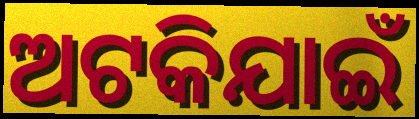
ଅଟକିଯାଇଁ